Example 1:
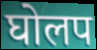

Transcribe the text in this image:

घोलप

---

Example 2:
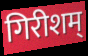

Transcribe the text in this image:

गिरीशम्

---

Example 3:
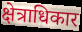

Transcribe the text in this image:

क्षेत्राधिकार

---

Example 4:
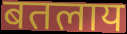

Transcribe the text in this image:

बतलाय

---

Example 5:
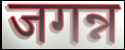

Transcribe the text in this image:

जगन्न